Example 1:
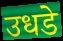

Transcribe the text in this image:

उधडे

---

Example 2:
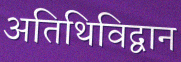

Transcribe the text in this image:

अतिथिविद्वान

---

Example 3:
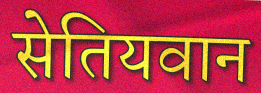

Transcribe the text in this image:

सेतियवान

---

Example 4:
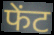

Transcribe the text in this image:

फेंट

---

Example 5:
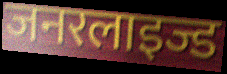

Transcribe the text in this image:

जनरलाइज्ड